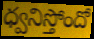
ధ్వనిస్తోందో